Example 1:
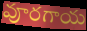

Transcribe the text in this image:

వూరగాయ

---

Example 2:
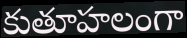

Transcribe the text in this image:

కుతూహలంగా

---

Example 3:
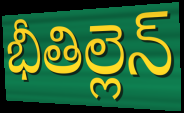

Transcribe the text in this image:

భీతిల్లెన్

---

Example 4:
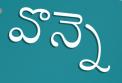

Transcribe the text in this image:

వొన్నె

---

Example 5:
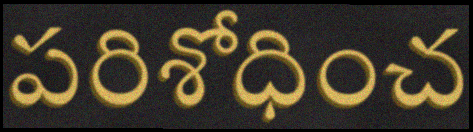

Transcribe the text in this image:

పరిశోధించ